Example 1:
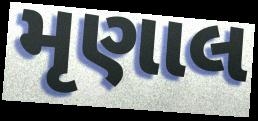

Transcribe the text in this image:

મૃણાલ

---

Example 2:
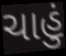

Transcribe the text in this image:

ચાહું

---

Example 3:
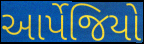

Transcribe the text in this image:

આર્પેજિયો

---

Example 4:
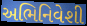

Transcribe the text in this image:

અભિનિવેશી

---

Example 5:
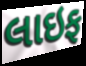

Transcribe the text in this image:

લાઇફ